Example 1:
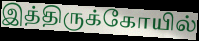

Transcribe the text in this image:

இத்திருக்கோயில்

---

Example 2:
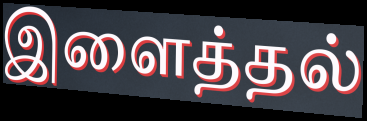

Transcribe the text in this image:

இளைத்தல்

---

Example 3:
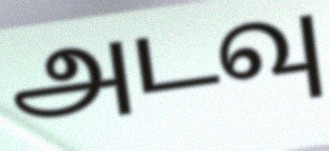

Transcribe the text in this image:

அடவு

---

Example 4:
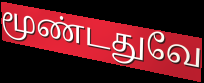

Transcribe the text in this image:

மூண்டதுவே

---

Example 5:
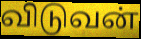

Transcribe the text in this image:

விடுவன்